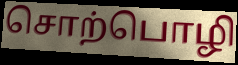
சொற்பொழி